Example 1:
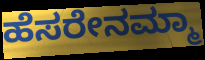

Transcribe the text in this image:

ಹೆಸರೇನಮ್ಮಾ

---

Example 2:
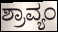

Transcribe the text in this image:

ಶ್ರಾವ್ಯಂ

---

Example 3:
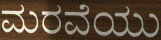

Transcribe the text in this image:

ಮರವೆಯು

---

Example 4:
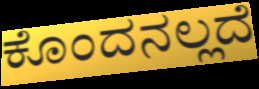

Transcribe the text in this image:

ಕೊಂದನಲ್ಲದೆ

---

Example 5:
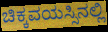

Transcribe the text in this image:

ಚಿಕ್ಕವಯಸ್ಸಿನಲ್ಲಿ